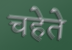
चहेते